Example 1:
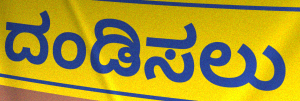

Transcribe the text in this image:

ದಂಡಿಸಲು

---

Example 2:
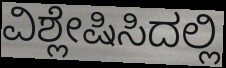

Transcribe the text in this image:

ವಿಶ್ಲೇಷಿಸಿದಲ್ಲಿ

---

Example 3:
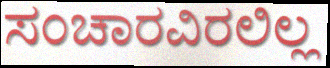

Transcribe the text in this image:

ಸಂಚಾರವಿರಲಿಲ್ಲ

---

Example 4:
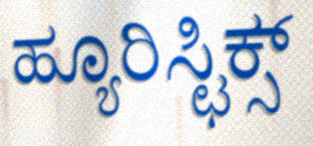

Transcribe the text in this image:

ಹ್ಯೂರಿಸ್ಟಿಕ್ಸ್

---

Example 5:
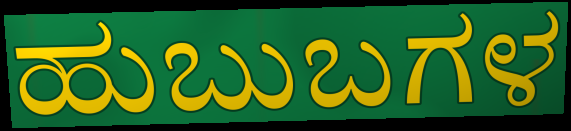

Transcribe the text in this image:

ಹುಬುಬಗಳ